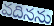
వదినను